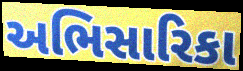
અભિસારિકા